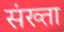
संख्ता